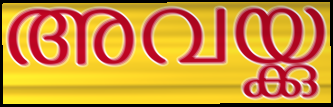
അവയ്ക്കു